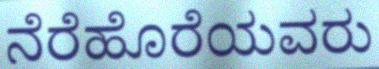
ನೆರೆಹೊರೆಯವರು